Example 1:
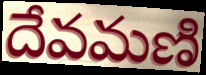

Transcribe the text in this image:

దేవమణి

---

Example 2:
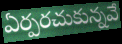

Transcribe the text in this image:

ఏర్పరచుకున్నవే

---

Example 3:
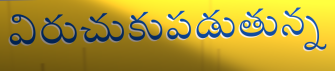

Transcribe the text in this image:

విరుచుకుపడుతున్న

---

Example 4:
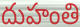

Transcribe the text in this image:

దుహంతి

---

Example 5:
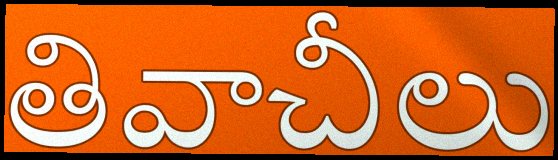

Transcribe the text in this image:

తివాచీలు